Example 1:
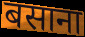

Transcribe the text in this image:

बसाना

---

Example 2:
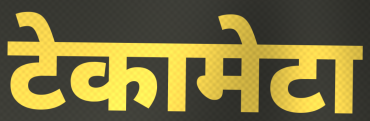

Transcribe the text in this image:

टेकामेटा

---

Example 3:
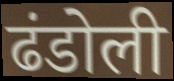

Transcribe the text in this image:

ढंडोली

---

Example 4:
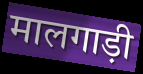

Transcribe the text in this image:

मालगाड़ी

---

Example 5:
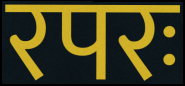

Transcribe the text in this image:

रपरः